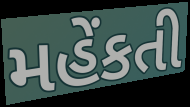
મહેંકતી